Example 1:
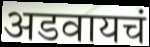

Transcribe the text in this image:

अडवायचं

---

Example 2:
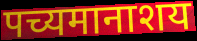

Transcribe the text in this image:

पच्यमानाशय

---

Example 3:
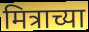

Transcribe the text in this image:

मित्राच्या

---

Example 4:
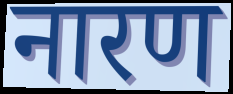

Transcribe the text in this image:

नारण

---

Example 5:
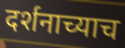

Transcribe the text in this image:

दर्शनाच्याच